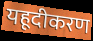
यहूदीकरण